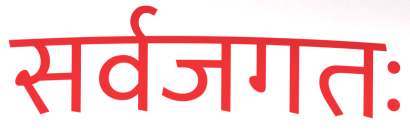
सर्वजगतः